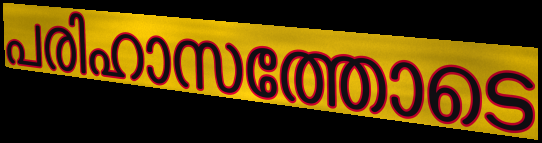
പരിഹാസത്തോടെ